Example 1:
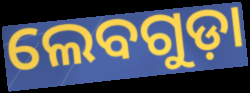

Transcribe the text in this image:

ଲେବଗୁଡ଼ା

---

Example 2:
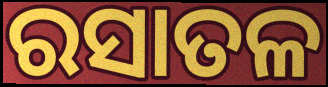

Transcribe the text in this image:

ରସାତଳ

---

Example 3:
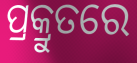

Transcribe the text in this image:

ପ୍ରକ୍ରୁତରେ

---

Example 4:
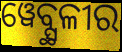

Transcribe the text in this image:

ୱେବ୍ସ୍ଥଳୀର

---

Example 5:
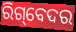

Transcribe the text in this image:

ରିଗ୍‌ବେଦର